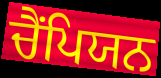
ਚੈੰਪਿਯਨ